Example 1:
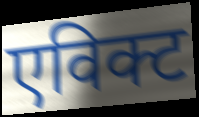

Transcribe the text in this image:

एविक्ट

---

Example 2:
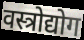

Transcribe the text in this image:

वस्त्रोद्योग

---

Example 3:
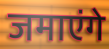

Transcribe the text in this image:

जमाएंगे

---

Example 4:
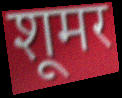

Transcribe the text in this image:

शूमर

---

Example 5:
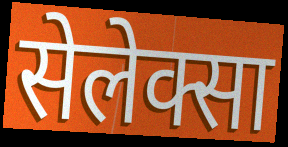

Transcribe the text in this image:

सेलेक्सा